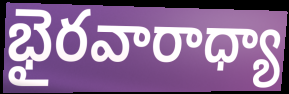
భైరవారాధ్యా